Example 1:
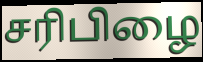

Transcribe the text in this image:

சரிபிழை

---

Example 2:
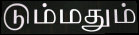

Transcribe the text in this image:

டும்மதும்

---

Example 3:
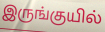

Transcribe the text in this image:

இருங்குயில்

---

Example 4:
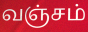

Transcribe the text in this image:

வஞ்சம்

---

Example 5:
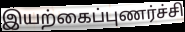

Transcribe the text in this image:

இயற்கைப்புணர்ச்சி